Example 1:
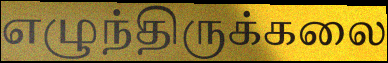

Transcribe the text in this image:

எழுந்திருக்கலை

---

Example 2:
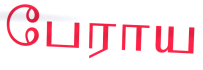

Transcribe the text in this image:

பேராய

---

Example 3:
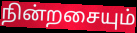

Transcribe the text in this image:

நின்றசையும்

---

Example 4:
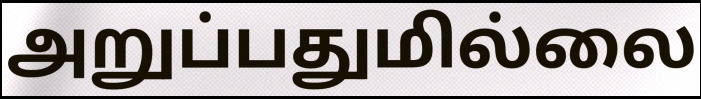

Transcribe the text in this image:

அறுப்பதுமில்லை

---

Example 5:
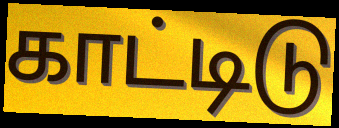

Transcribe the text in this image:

காட்டிடு